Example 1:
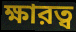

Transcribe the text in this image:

ক্ষারত্ব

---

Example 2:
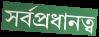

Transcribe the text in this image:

সর্বপ্রধানত্ব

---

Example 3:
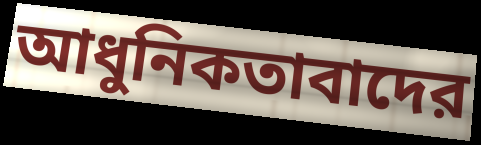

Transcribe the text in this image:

আধুনিকতাবাদের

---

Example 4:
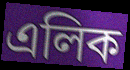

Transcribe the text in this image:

এলিক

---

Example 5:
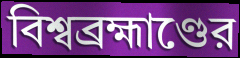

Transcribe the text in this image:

বিশ্বব্রহ্মাণ্ডের